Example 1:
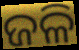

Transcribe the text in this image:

ଜଳି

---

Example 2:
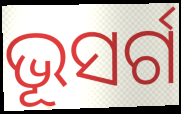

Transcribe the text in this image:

ଭୂସର୍ଗ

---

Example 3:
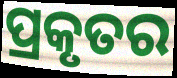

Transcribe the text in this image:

ପ୍ରକୃତର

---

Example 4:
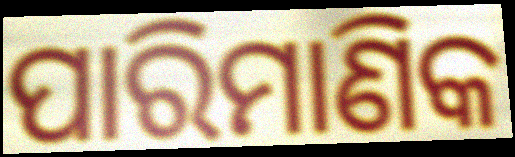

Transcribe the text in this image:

ପାରିମାଣିକ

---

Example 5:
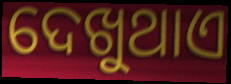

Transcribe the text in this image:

ଦେଖୁଥାଏ